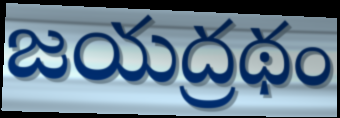
జయద్రథం